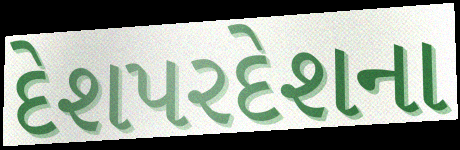
દેશપરદેશના